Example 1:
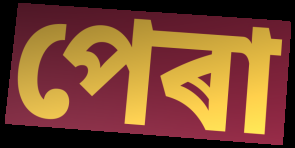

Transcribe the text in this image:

পেৰা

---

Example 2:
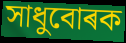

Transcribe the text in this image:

সাধুবোৰক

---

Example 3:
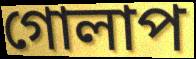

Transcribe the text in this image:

গোলাপ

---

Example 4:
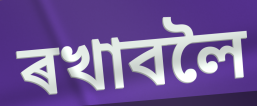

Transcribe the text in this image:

ৰখাবলৈ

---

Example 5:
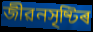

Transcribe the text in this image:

জীৱনসৃষ্টিৰ